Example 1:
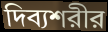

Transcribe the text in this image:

দিব্যশরীর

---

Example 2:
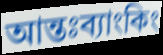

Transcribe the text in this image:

আন্তঃব্যাংকিং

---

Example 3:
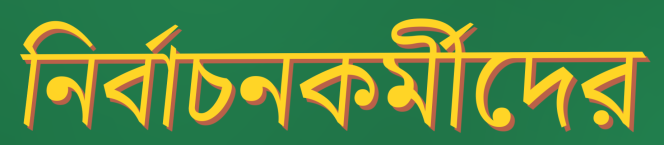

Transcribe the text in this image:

নির্বাচনকর্মীদের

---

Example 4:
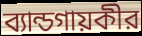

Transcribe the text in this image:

ব্যান্ডগায়কীর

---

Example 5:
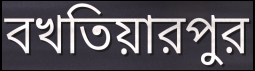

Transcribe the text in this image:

বখতিয়ারপুর